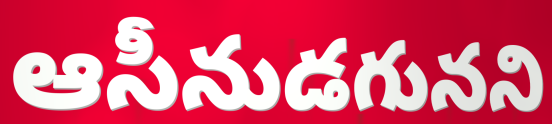
ఆసీనుడగునని